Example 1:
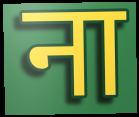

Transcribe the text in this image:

ना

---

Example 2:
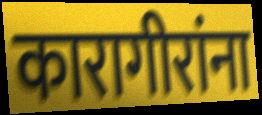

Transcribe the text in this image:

कारागीरांना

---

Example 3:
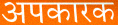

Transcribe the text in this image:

अपकारक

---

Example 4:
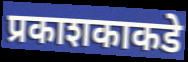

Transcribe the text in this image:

प्रकाशकाकडे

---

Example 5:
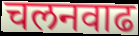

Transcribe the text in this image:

चलनवाढ